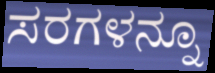
ಸರಗಳನ್ನೂ